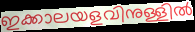
ഇക്കാലയളവിനുള്ളിൽ